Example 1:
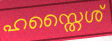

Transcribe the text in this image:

ഹസ്തൈശ്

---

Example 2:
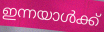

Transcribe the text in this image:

ഇന്നയാൾക്ക്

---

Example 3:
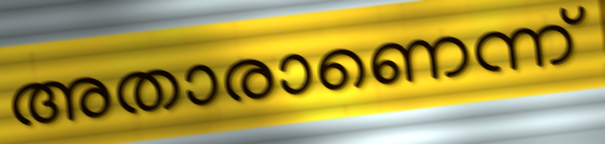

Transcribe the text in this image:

അതാരാണെന്ന്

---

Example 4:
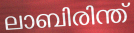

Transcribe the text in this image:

ലാബിരിന്ത്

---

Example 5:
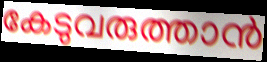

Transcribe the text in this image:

കേടുവരുത്താൻ